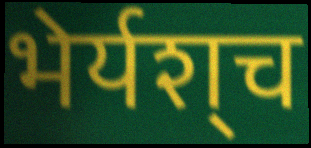
भेर्यश्च